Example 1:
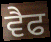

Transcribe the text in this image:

ਵੈਫ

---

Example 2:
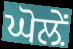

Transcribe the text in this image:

ਘੋਲ਼ੇਂ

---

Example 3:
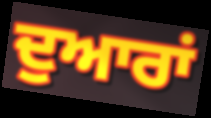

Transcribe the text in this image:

ਦੁਆਰਾਂ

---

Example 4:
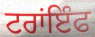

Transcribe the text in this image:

ਟਰਾਂਇੰਫ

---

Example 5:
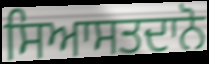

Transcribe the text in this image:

ਸਿਆਸਤਦਾਨੋ